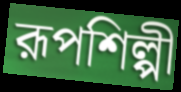
রূপশিল্পী